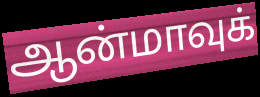
ஆன்மாவுக்